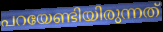
പറയേണ്ടിയിരുന്നത്